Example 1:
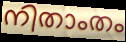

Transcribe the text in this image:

നിതാംതം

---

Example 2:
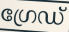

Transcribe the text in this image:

ഗ്രേഡ്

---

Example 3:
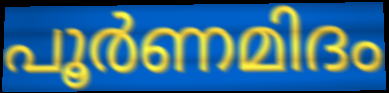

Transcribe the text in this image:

പൂർണമിദം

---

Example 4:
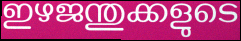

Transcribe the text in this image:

ഇഴജന്തുക്കളുടെ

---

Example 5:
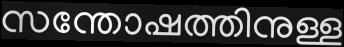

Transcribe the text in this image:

സന്തോഷത്തിനുള്ള